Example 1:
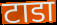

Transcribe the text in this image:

टाडा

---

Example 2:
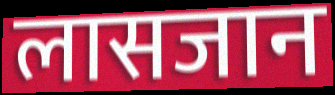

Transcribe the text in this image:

लासजान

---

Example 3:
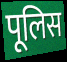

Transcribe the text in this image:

पूलिस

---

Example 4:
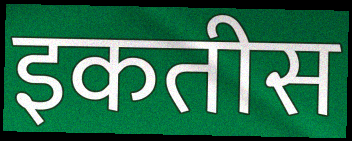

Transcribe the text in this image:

इकतीस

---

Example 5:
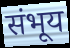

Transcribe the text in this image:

संभूय